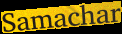
Samachar